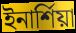
ইনার্শিয়া